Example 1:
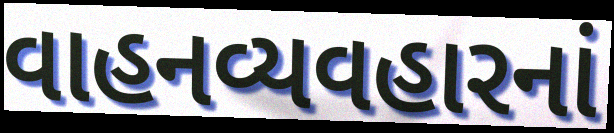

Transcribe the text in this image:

વાહનવ્યવહારનાં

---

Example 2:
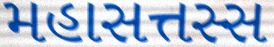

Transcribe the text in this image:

મહાસત્તસ્સ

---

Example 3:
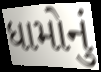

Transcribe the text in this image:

ધામોનું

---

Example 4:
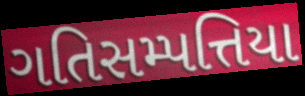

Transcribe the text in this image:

ગતિસમ્પત્તિયા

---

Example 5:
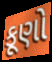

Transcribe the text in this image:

કૂણો